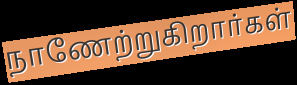
நாணேற்றுகிறார்கள்